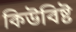
কিউবিষ্ট